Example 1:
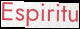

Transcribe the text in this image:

Espiritu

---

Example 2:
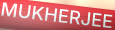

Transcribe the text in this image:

MUKHERJEE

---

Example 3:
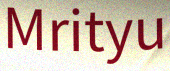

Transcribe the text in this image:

Mrityu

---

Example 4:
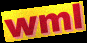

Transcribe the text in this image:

wml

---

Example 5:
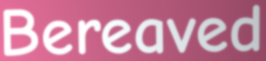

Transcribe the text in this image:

Bereaved